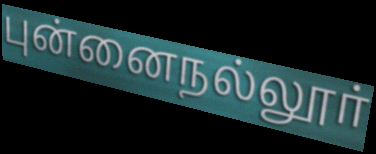
புன்னைநல்லூர்